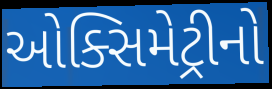
ઓક્સિમેટ્રીનો